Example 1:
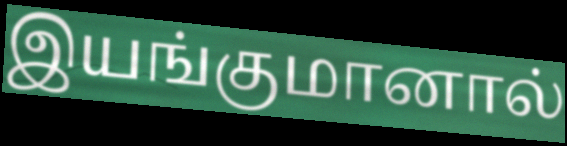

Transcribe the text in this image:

இயங்குமானால்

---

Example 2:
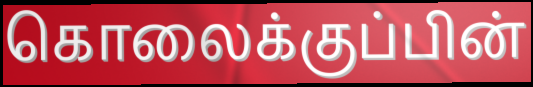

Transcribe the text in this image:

கொலைக்குப்பின்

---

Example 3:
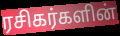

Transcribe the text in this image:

ரசிகர்களின்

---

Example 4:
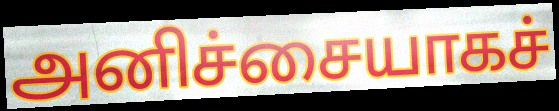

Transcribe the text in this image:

அனிச்சையாகச்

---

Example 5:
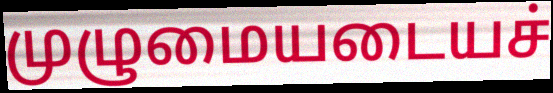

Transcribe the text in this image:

முழுமையடையச்